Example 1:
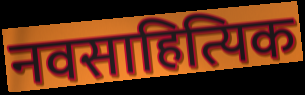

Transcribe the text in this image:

नवसाहित्यिक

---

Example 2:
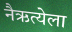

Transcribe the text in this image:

नैऋत्येला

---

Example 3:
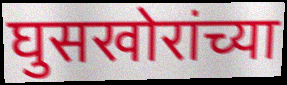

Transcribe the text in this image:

घुसखोरांच्या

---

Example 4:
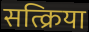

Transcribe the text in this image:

सत्क्रिया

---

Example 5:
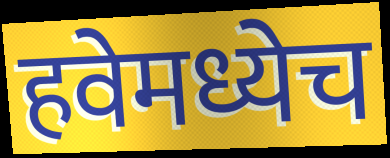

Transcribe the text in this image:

हवेमध्येच